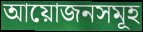
আয়োজনসমূহ